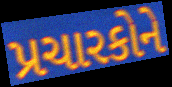
પ્રચારકોને